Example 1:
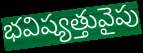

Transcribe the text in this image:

భవిష్యత్తువైపు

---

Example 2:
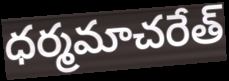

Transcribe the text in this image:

ధర్మమాచరేత్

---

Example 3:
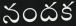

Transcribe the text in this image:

నందక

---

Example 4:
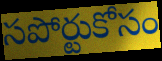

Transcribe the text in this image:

సపోర్టుకోసం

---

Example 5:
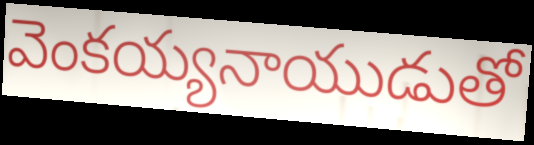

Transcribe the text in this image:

వెంకయ్యనాయుడుతో